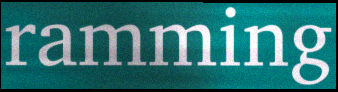
ramming